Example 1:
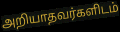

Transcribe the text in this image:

அறியாதவர்களிடம்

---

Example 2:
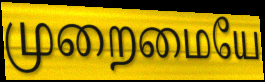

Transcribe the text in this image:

முறைமையே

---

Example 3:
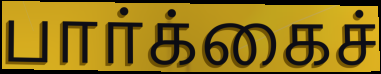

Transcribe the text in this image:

பார்க்கைச்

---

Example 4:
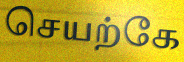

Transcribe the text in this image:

செயற்கே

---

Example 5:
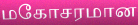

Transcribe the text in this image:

மகோசரமான